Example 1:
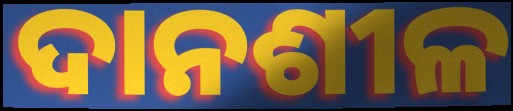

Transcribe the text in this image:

ଦାନଶୀଳ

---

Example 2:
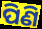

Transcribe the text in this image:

ପିଣି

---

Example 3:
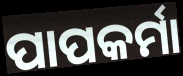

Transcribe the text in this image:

ପାପକର୍ମା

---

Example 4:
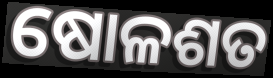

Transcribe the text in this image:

ଷୋଳଶତ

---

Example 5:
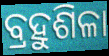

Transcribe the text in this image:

ବ୍ରହୁଶିଳା